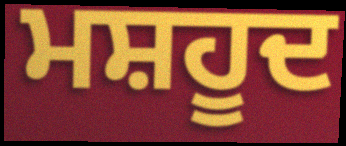
ਮਸ਼ਹੂਦ